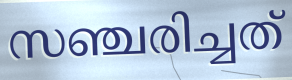
സഞ്ചരിച്ചത്